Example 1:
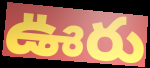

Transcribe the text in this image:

ఊరు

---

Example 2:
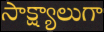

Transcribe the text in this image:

సాక్ష్యాలుగా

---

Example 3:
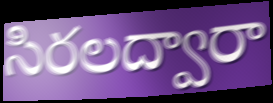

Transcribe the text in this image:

సిరలద్వారా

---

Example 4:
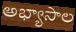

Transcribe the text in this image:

అభ్యాసాల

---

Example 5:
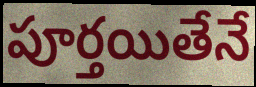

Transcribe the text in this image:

పూర్తయితేనే